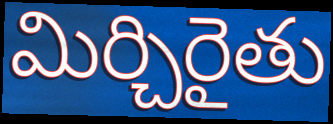
మిర్చిరైతు